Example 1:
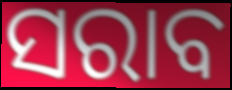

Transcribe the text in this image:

ସରାବ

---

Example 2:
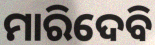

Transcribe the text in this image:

ମାରିଦେବି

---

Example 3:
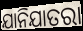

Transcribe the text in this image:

ଯାନିଯାତରା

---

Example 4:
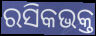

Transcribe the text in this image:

ରସିକଭକ୍ତ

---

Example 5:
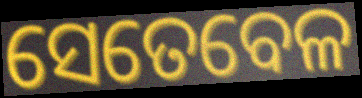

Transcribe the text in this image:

ସେତେବେଳ